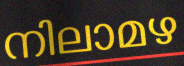
നിലാമഴ